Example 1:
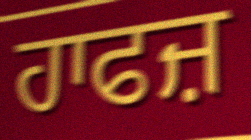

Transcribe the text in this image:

ਹਾਫਜ਼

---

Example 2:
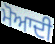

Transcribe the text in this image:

ਮੋਆਦੀ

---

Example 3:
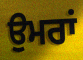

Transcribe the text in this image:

ਉਮਰਾਂ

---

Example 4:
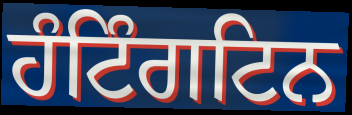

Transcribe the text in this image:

ਹੰਟਿੰਗਟਿਨ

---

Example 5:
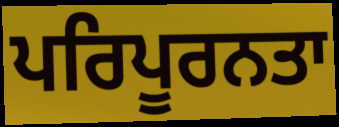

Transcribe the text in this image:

ਪਰਿਪੂਰਨਤਾ